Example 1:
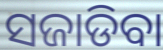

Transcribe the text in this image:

ସଜାଡିବା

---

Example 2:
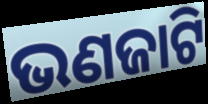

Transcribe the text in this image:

ଭଣଜାଟି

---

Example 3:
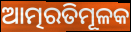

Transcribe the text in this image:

ଆତ୍ମରତିମୂଳକ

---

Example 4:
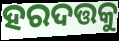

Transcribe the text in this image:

ହରଦତ୍ତକୁ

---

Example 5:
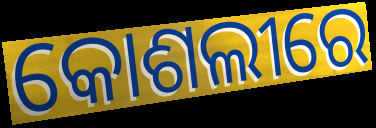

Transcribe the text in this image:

କୋଶଲୀରେ